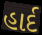
હાર્દ